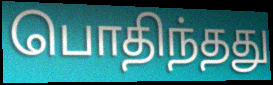
பொதிந்தது